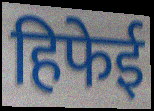
हिफेई